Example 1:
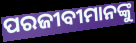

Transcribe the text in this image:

ପରଜୀବୀମାନଙ୍କୁ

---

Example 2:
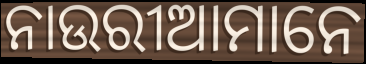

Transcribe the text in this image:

ନାଉରୀଆମାନେ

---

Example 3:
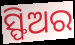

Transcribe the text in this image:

ସ୍ଫିଅର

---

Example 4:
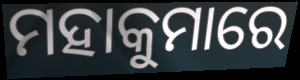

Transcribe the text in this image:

ମହାକୁମାରେ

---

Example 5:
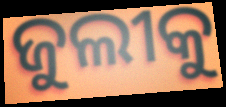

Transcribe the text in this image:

ଜୁଲୀକୁ